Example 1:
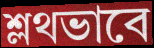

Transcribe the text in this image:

শ্লথভাবে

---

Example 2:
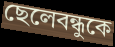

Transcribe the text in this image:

ছেলেবন্ধুকে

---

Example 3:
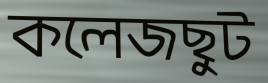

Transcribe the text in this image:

কলেজছুট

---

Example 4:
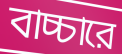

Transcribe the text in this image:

বাচ্চারে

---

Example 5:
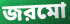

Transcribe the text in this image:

জরমো